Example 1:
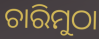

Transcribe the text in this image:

ଚାରିମୁଠା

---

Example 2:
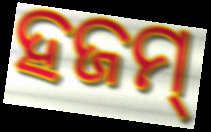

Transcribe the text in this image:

ହଜମ୍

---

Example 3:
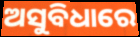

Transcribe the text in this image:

ଅସୁବିଧାରେ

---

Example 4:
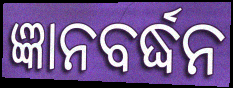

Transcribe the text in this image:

ଜ୍ଞାନବର୍ଦ୍ଧନ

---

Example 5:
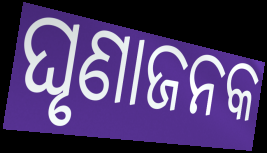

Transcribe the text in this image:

ଘୃଣାଜନକ